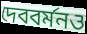
দেববর্মনও